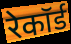
रेकॉर्ड